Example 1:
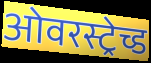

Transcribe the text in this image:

ओवरस्ट्रेच्ड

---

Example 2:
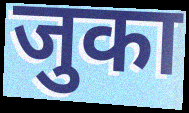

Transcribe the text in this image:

जुका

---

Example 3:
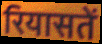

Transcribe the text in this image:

रियासतें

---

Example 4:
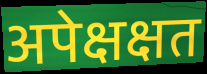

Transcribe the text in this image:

अपेक्षक्षत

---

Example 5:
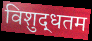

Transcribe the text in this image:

विशुद्धतम